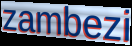
zambezi